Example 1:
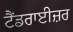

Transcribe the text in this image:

ਟੈਂਡਰਾਈਜ਼ਰ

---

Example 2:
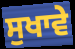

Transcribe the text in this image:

ਸੁਖਾਵੇ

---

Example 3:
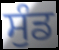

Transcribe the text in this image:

ਸੁੰਡ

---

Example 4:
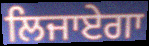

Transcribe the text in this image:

ਲਿਜਾਏਗਾ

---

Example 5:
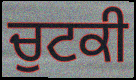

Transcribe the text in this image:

ਚੁਟਕੀ